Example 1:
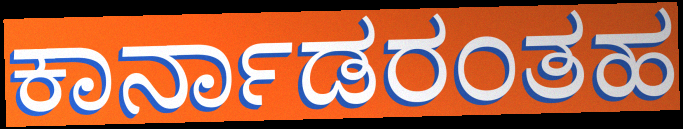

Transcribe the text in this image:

ಕಾರ್ನಾಡರಂತಹ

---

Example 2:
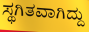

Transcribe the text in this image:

ಸ್ಥಗಿತವಾಗಿದ್ದು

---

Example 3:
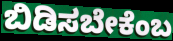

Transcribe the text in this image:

ಬಿಡಿಸಬೇಕೆಂಬ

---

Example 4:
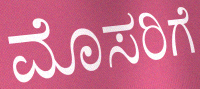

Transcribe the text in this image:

ಮೊಸರಿಗೆ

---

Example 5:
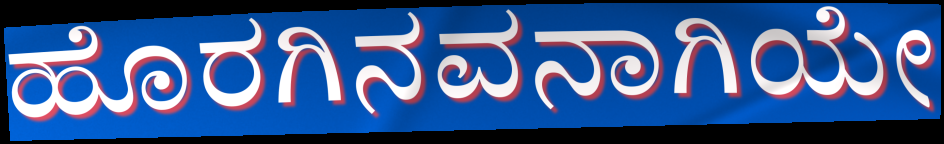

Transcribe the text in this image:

ಹೊರಗಿನವನಾಗಿಯೇ